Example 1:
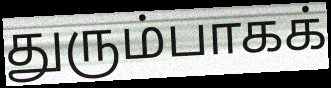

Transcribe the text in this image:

துரும்பாகக்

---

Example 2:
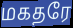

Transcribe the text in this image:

மகதரே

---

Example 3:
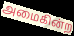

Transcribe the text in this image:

அமைகின்ற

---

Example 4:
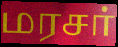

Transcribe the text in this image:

மரசர்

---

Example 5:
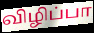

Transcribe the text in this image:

விழிப்பா